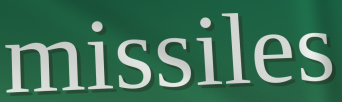
missiles